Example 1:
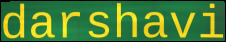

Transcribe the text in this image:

darshavi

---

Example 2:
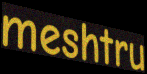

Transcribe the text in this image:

meshtru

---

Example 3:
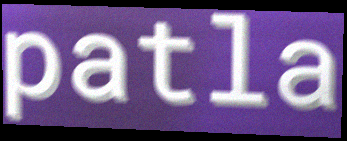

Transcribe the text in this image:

patla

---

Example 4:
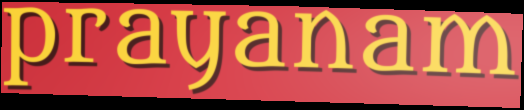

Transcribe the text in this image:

prayanam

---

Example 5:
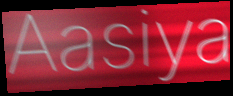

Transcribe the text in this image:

Aasiya